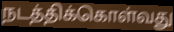
நடத்திக்கொள்வது